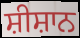
ਸ਼ੀਸ਼ਾਨ